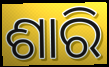
ଶାରି